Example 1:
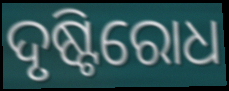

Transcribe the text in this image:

ଦୃଷ୍ଟିରୋଧ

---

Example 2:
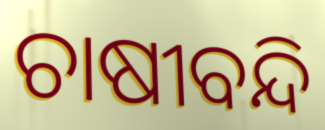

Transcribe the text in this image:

ଚାଷୀବନ୍ଦି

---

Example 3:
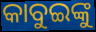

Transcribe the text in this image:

କାବୁଇଙ୍କୁ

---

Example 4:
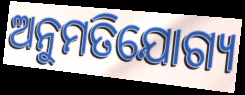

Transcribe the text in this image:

ଅନୁମତିଯୋଗ୍ୟ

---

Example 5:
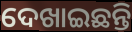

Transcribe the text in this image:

ଦେଖାଇଛନ୍ତି